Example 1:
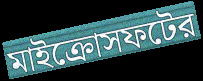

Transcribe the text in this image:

মাইক্রোসফটের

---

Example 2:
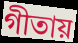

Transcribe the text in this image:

গীতায়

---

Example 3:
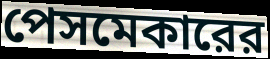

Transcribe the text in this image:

পেসমেকারের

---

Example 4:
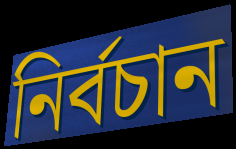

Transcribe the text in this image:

নির্বচান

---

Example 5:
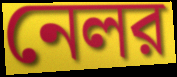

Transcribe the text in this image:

নেলর